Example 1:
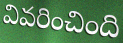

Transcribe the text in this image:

వివరించింది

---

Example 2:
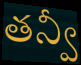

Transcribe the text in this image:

తన్వీ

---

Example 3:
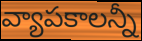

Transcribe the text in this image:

వ్యాపకాలన్నీ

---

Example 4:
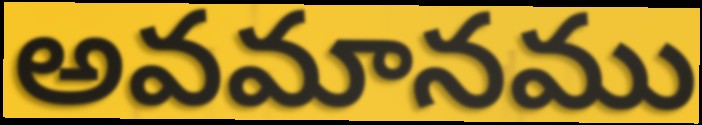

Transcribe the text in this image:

అవమానము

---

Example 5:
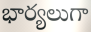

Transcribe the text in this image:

భార్యలుగా